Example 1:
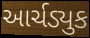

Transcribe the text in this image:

આર્ચડ્યુક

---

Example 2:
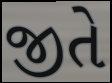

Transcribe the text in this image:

જીતે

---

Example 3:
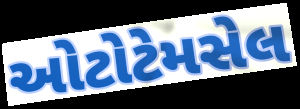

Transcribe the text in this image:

ઓટોટેમસેલ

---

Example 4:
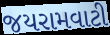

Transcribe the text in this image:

જયરામવાટી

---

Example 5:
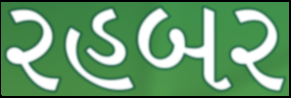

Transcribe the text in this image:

રહબર